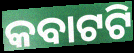
କବାଟଟି